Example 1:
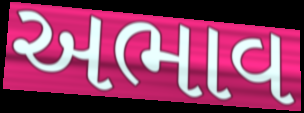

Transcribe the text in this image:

અભાવ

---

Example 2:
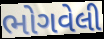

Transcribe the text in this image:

ભોગવેલી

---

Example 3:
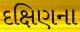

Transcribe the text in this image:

દક્ષિણના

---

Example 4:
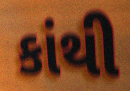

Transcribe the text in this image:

કાંથી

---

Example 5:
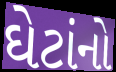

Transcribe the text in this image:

ઘેટાંનો